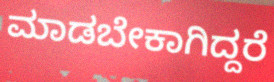
ಮಾಡಬೇಕಾಗಿದ್ದರೆ